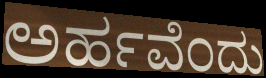
ಅರ್ಹವೆಂದು